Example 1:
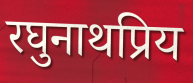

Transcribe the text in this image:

रघुनाथप्रिय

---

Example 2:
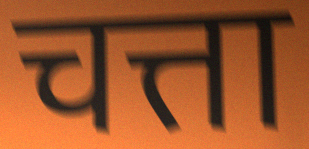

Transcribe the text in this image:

चत्ता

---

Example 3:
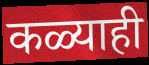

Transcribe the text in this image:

कळ्याही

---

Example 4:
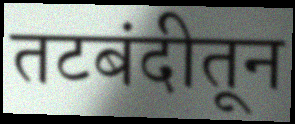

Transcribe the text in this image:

तटबंदीतून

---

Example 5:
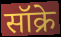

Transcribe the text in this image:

सॉक्रे